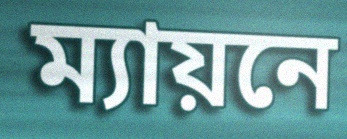
ম্যায়নে